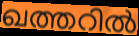
ഖത്തറിൽ